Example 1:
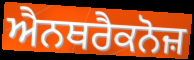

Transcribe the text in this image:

ਐਨਥਰੈਕਨੋਜ਼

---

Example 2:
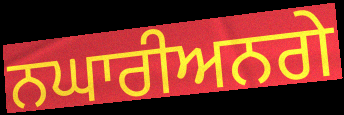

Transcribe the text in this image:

ਨਘਾਰੀਅਨਗੇ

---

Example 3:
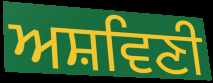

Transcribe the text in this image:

ਅਸ਼ਵਿਣੀ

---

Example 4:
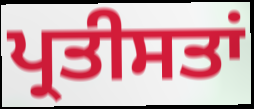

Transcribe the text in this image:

ਪ੍ਰਤੀਸਤਾਂ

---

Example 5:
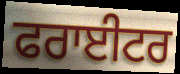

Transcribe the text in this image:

ਫਰਾਈਟਰ